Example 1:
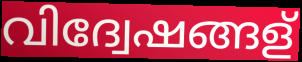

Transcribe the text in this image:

വിദ്വേഷങ്ങള്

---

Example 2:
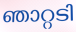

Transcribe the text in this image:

ഞാറ്റടി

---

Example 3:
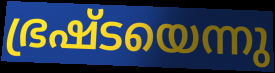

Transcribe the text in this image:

ഭ്രഷ്ടയെന്നു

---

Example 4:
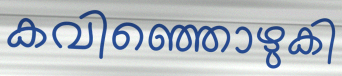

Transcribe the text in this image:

കവിഞ്ഞൊഴുകി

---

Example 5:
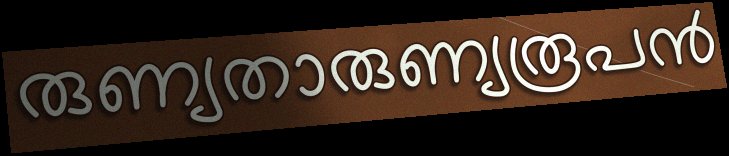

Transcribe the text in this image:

രുണ്യതാരുണ്യരൂപൻ